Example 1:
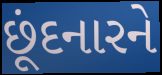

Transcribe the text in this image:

છૂંદનારને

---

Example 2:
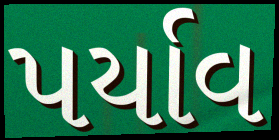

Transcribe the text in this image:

પર્યાવ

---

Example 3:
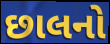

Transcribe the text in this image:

છાલનો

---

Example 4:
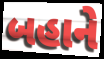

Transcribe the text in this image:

બહાને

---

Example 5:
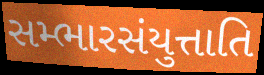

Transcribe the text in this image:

સમ્ભારસંયુત્તાતિ